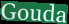
Gouda